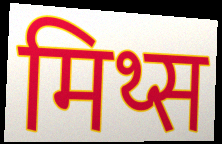
मिथ्स